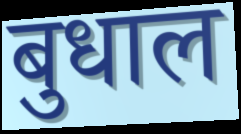
बुधाल